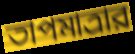
তাপমাত্রার